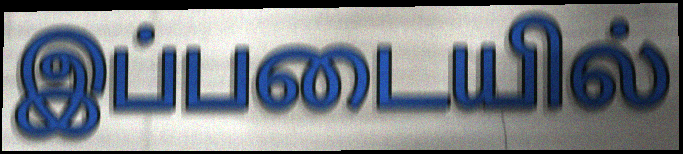
இப்படையில்